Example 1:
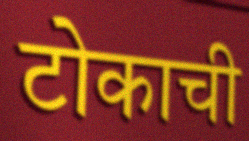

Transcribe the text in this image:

टोकाची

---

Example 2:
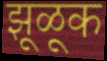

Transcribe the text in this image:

झूळूक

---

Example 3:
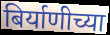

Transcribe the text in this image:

बिर्याणीच्या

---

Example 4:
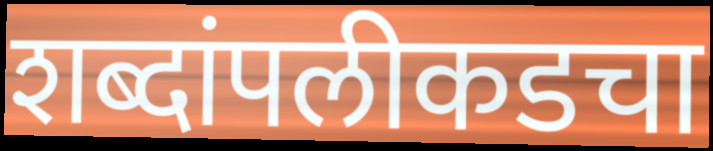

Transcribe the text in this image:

शब्दांपलीकडचा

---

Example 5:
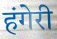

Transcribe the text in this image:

हंगेरी